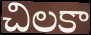
చిలకా